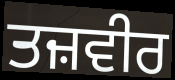
ਤਜ਼ਵੀਰ